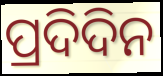
ପ୍ରଦିଦିନ